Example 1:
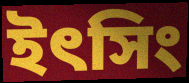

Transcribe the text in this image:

ইৎসিং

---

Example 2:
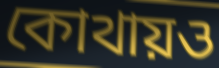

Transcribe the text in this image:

কোথায়ও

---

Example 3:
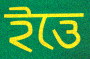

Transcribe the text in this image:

ইত্তে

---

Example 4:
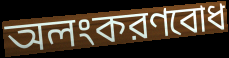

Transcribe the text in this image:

অলংকরণবোধ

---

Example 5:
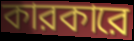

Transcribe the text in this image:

কারকারে